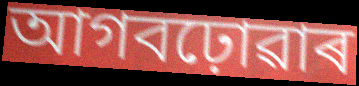
আগবঢ়োৱাৰ